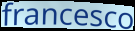
francesco